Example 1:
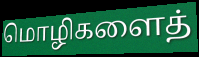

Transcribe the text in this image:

மொழிகளைத்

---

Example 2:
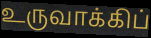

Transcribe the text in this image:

உருவாக்கிப்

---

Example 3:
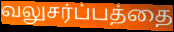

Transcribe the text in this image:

வலுசர்ப்பத்தை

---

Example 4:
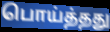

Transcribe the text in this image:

பொய்த்தது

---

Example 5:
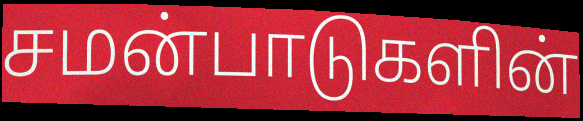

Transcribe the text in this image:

சமன்பாடுகளின்